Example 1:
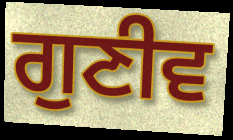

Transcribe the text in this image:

ਗੁਣੀਵ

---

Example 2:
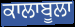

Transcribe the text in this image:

ਕਾਲਾਬੂਲਾ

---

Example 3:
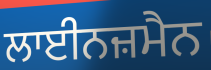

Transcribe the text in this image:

ਲਾਈਨਜ਼ਮੈਨ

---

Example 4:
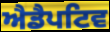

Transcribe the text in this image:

ਐਡੈਪਟਿਵ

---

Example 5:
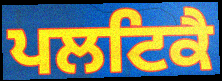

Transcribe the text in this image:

ਪਲਟਿਕੈ